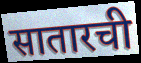
सातारची